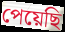
পেয়েছি